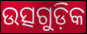
ଉତ୍ସଗୁଡ଼ିକ